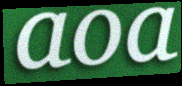
aoa